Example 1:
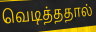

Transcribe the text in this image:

வெடித்ததால்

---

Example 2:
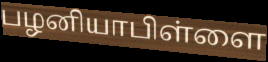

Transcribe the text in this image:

பழனியாபிள்ளை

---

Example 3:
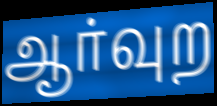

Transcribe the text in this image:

ஆர்வுற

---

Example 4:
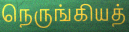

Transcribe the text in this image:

நெருங்கியத்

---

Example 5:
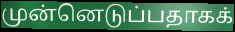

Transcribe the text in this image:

முன்னெடுப்பதாகக்